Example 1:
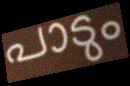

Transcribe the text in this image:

പാടും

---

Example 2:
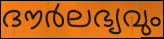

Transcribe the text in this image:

ദൗർലഭ്യവും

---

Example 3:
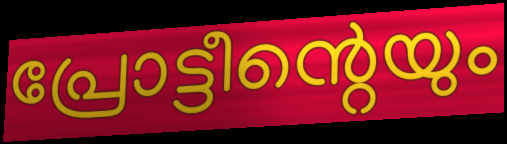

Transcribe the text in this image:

പ്രോട്ടീന്റെയും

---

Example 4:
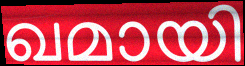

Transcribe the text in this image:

ഖമായി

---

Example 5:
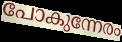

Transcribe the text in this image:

പോകുന്നേരം